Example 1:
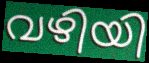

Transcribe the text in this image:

വഴിയി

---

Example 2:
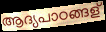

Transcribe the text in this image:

ആദ്യപാഠങ്ങള്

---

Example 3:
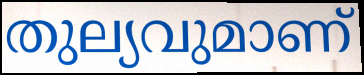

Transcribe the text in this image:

തുല്യവുമാണ്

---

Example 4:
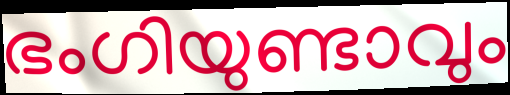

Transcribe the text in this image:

ഭംഗിയുണ്ടാവും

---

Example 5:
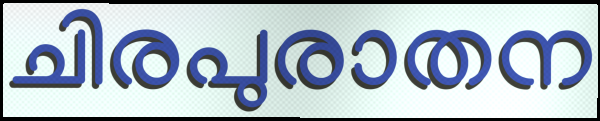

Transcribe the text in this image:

ചിരപുരാതന